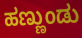
ಹಣ್ಣುಂಡು